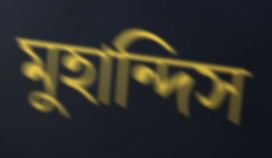
মুহান্দিস